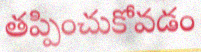
తప్పించుకోవడం